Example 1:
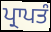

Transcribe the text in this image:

ਪ੍ਰਾਪਤੰ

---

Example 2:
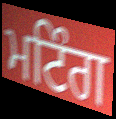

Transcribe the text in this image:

ਮਟਿੰਗ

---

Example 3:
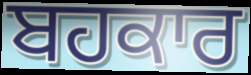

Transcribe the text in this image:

ਬਹਕਾਰ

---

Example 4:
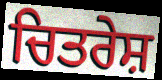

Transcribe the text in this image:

ਚਿਤਰੇਸ਼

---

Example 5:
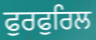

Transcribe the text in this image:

ਫੁਰਫੁਰਿਲ